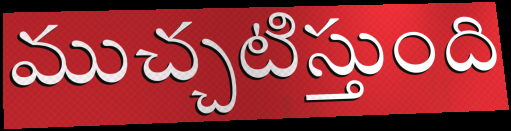
ముచ్చటిస్తుంది